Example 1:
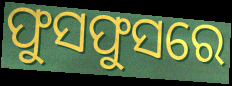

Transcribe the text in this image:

ଫୁସଫୁସରେ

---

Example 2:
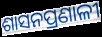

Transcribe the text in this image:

ଶାସନପ୍ରଣାଳୀ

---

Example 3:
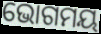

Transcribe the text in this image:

ଭୋଗମୟ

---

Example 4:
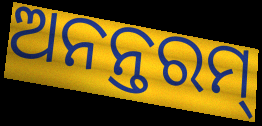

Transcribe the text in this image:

ଅନନ୍ତରମ୍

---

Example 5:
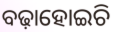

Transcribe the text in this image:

ବଢ଼ାହୋଇଚି